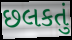
છલકતું